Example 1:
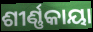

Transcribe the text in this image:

ଶୀର୍ଣ୍ଣକାୟା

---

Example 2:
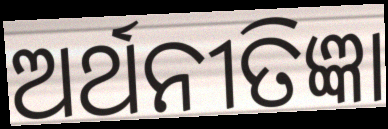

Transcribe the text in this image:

ଅର୍ଥନୀତିଜ୍ଞା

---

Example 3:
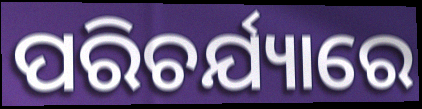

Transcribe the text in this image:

ପରିଚର୍ଯ୍ୟାରେ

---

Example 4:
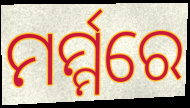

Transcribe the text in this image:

ମର୍ମ୍ମରେ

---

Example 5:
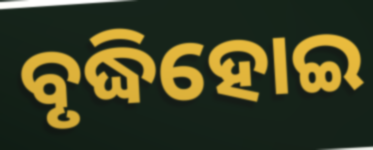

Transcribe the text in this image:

ବୃଦ୍ଧିହୋଇ